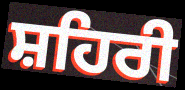
ਸ਼ਹਿਰੀ